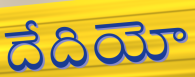
దేదియో